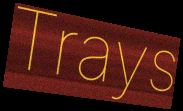
Trays